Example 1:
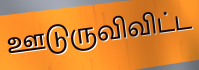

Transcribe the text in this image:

ஊடுருவிவிட்ட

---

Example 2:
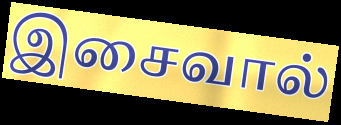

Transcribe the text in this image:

இசைவால்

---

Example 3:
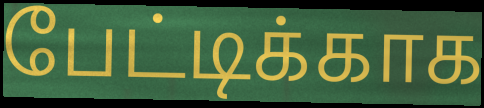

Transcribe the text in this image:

பேட்டிக்காக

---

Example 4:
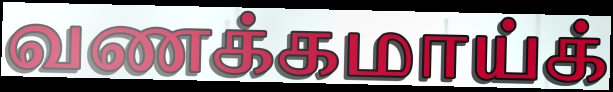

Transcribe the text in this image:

வணக்கமாய்க்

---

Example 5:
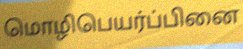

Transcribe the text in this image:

மொழிபெயர்ப்பினை